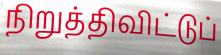
நிறுத்திவிட்டுப்